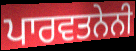
ਪਾਰਵਤਨੇਨੀ